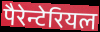
पैरेन्टेरियल